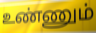
உண்ணும்